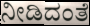
ನೀಡಿದಂತೆ